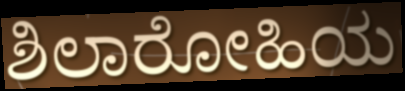
ಶಿಲಾರೋಹಿಯ